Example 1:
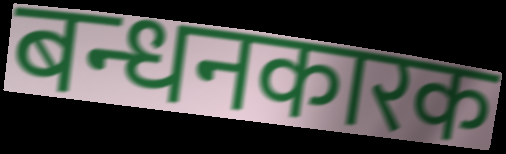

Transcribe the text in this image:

बन्धनकारक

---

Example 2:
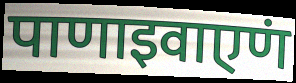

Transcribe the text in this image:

पाणाइवाएणं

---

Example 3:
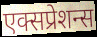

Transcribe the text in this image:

एक्सप्रेशन्स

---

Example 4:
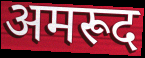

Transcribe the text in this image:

अमरूद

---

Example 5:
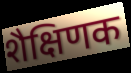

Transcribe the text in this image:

शैक्षिणक